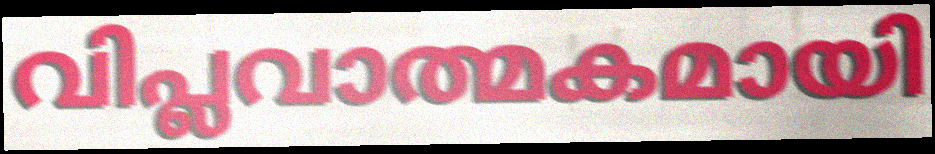
വിപ്ലവാത്മകമായി